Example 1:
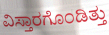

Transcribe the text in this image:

ವಿಸ್ತಾರಗೊಂಡಿತ್ತು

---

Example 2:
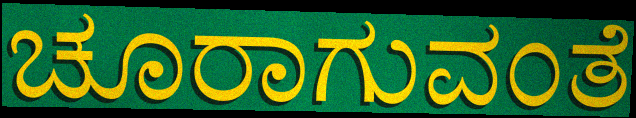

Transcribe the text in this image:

ಚೂರಾಗುವಂತೆ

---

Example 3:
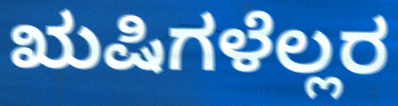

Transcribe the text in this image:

ಋಷಿಗಳೆಲ್ಲರ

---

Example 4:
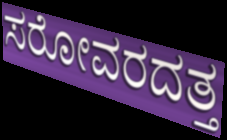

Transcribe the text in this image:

ಸರೋವರದತ್ತ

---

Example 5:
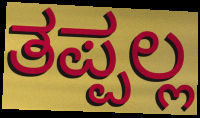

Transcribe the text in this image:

ತಪ್ಪಲ್ಲ